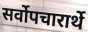
सर्वोपचारार्थे